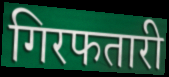
गिरफतारी